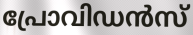
പ്രോവിഡൻസ്